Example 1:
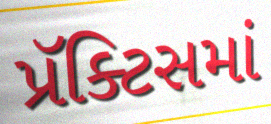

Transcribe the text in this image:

પ્રૅક્ટિસમાં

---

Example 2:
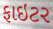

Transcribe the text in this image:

ફાઇટર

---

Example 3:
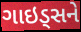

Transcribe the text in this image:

ગાઇડ્સને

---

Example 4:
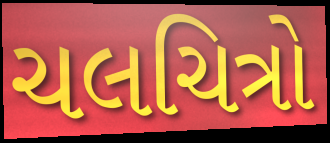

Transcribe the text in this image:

ચલચિત્રો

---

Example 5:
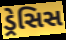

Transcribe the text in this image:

ડ્રેસિસ